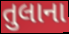
તુલાના